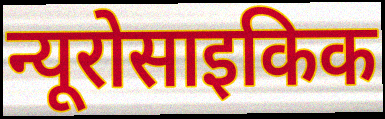
न्यूरोसाइकिक